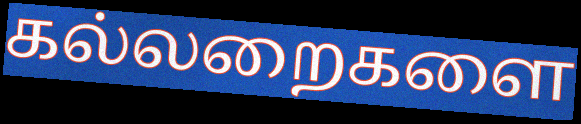
கல்லறைகளை